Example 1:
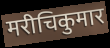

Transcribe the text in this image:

मरीचिकुमार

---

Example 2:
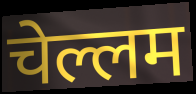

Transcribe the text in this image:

चेल्लम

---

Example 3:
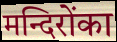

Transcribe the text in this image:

मन्दिरोंका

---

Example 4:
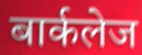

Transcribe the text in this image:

बार्कलेज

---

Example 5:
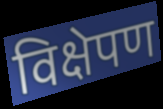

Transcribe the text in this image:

विक्षेपण